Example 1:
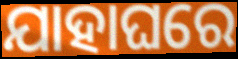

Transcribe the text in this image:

ଯାହାଘରେ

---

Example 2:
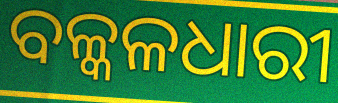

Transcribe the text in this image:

ବଳ୍କଳଧାରୀ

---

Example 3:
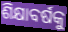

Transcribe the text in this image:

ଶିକ୍ଷାବର୍ଷକୁ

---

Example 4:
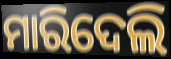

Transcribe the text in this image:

ମାରିଦେଲି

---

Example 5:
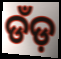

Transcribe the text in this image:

ଡଁଡ଼